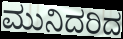
ಮುನಿದರಿದ